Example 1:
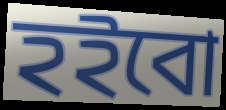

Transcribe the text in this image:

হইবো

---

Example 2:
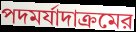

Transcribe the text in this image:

পদমর্যাদাক্রমের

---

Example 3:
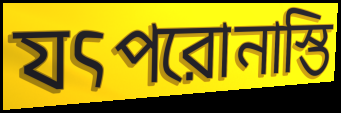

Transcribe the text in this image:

যৎপরোনাস্তি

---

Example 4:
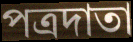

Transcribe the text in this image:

পত্রদাতা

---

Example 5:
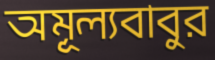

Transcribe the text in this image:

অমূল্যবাবুর